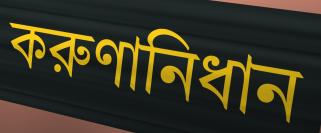
করুণানিধান